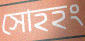
সোহহং